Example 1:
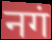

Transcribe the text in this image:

नगं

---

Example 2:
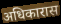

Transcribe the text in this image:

अधिकारास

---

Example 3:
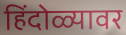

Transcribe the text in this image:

हिंदोळ्यावर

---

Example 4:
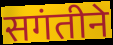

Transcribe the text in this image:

सगंतीने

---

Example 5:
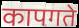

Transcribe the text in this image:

कापगते